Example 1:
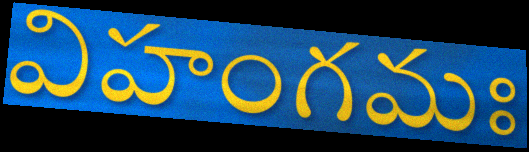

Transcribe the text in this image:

విహంగమః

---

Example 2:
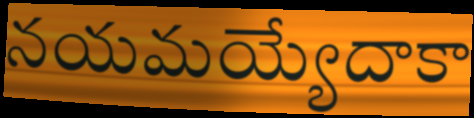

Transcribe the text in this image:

నయమయ్యేదాకా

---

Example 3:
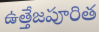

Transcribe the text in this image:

ఉత్తేజపూరిత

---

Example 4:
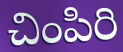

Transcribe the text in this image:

చింపిరి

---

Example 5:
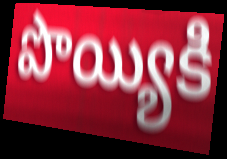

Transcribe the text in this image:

పొయ్యికి